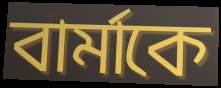
বার্মাকে